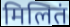
मिलितं